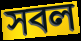
সবল